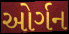
ઓર્ગન